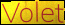
Volet